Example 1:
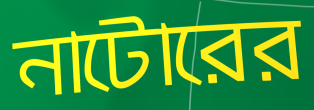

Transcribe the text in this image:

নাটোরের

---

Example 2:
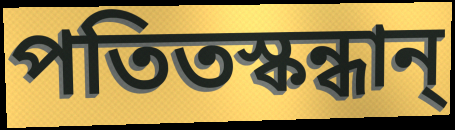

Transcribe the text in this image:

পতিতস্কন্ধান্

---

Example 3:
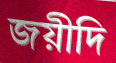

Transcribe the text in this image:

জয়ীদি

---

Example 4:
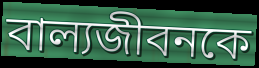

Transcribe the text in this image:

বাল্যজীবনকে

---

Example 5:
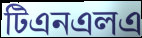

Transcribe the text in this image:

টিএনএলএ